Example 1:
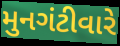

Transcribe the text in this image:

મુનગંટીવારે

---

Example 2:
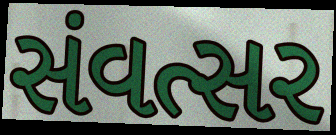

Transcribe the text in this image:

સંવત્સર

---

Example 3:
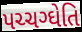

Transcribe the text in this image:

પચ્ચગ્ઘેતિ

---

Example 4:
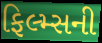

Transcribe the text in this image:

ફિલ્મ્સની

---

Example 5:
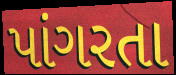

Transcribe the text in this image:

પાંગરતા